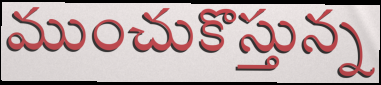
ముంచుకొస్తున్న